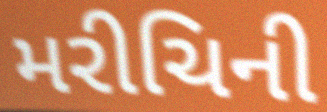
મરીચિની